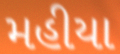
મહીયા